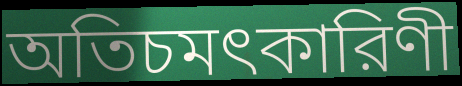
অতিচমৎকারিণী